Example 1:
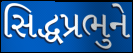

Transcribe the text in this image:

સિદ્ધપ્રભુને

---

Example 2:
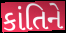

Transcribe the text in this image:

કાંતિને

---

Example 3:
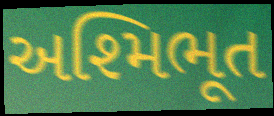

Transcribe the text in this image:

અશ્મિભૂત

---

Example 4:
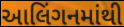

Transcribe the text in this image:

આલિંગનમાંથી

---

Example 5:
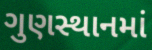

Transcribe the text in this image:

ગુણસ્થાનમાં